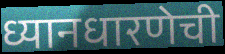
ध्यानधारणेची